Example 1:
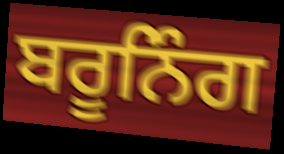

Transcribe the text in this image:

ਬਰੂਨਿੰਗ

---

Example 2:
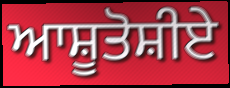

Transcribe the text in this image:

ਆਸ਼ੂਤੋਸ਼ੀਏ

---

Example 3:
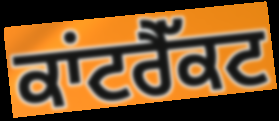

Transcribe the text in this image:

ਕਾਂਟਰੈੱਕਟ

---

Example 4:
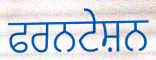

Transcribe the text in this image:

ਫਰਨਟੇਸ਼ਨ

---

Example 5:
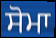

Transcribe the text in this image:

ਸੋਮਾ